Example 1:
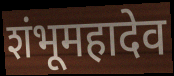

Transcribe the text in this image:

शंभूमहादेव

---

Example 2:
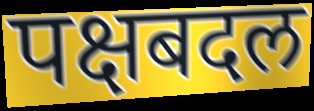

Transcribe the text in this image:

पक्षबदल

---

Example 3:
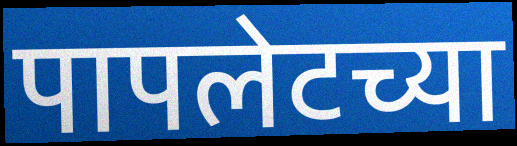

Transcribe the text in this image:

पापलेटच्या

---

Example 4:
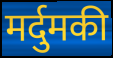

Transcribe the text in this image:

मर्दुमकी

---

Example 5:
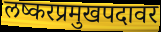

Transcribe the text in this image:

लष्करप्रमुखपदावर